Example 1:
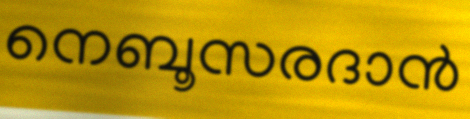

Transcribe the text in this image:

നെബൂസരദാൻ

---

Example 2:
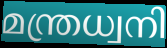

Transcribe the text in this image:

മന്ത്രധ്വനി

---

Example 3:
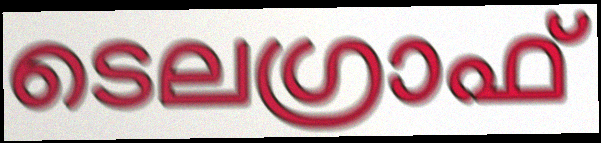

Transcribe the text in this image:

ടെലഗ്രാഫ്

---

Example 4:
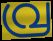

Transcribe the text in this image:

വ്ര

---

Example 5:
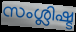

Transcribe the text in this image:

സംശ്ലിഷ്ട